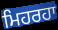
ਮਿਹਰਹਾ